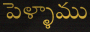
పెళ్ళాము